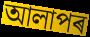
আলাপৰ